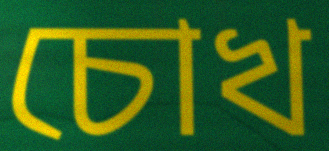
চোখ